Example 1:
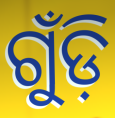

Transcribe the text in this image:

ଗୁଁଡ଼ି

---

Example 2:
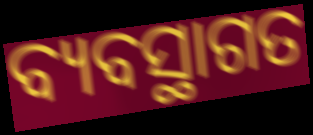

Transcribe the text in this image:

ବ୍ୟବସ୍ଥାଗତ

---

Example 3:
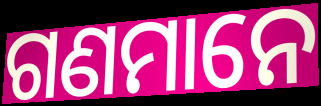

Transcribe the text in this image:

ଗଣମାନେ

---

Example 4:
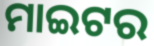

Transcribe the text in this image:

ମାଇଟର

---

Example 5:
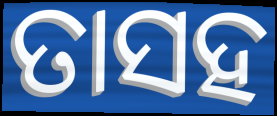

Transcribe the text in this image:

ତାସହ